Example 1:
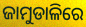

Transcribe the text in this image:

ଜାମୁଡାଳିରେ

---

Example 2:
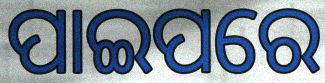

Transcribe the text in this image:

ପାଇପରେ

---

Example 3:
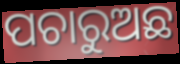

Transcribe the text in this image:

ପଚାରୁଅଛ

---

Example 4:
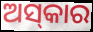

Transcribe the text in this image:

ଅସ୍‌କାର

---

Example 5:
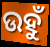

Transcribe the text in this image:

ଉହୁଁ